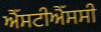
ਐੱਸਟੀਐੱਸਸੀ